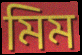
মিম